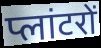
प्लांटरों